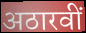
अठारवीं